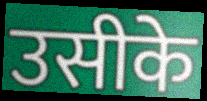
उसीके